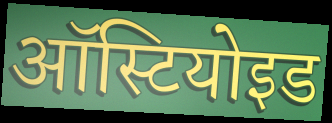
ऑस्टियोइड